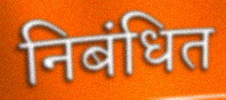
निबंधित